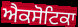
ਐਕਸੋਟਿਕਾ